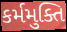
કર્મમુક્તિ